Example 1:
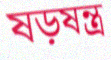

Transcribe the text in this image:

ষড়ষন্ত্র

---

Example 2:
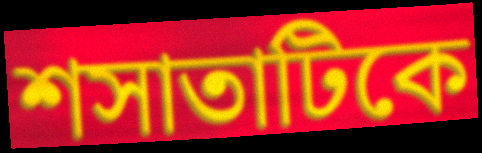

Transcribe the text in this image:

শসাতাটিকে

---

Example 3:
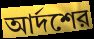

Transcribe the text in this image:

আর্দশের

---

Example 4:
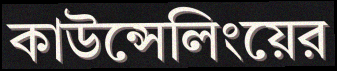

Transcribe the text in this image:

কাউন্সেলিংয়ের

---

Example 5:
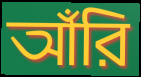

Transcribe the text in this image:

আঁরি